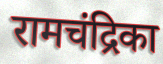
रामचंद्रिका